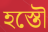
হস্তৌ